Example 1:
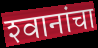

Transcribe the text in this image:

श्वानांचा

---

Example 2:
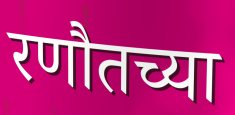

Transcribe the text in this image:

रणौतच्या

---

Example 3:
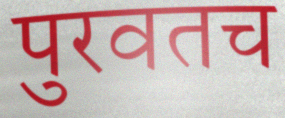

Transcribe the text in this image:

पुरवतच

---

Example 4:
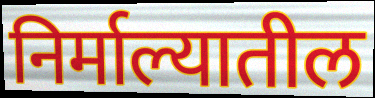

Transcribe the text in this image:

निर्माल्यातील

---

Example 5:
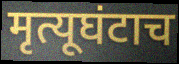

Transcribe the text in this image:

मृत्यूघंटाच